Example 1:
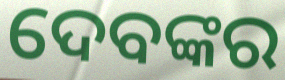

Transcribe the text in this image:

ଦେବଙ୍କର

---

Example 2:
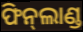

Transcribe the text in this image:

ଫିନ୍‌ଲାଣ୍ଡ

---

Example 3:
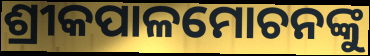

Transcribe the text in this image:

ଶ୍ରୀକପାଳମୋଚନଙ୍କୁ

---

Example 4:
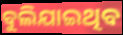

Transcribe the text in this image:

ବୁଲିଯାଇଥିବ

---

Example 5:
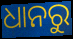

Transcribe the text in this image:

ଧାନରୁ